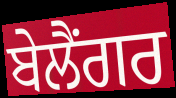
ਬੇਲੈਂਗਰ